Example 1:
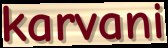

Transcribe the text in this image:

karvani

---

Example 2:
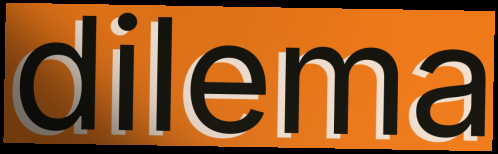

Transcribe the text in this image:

dilema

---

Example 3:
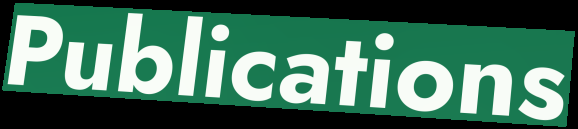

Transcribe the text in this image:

Publications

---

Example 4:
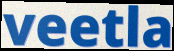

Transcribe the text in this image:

veetla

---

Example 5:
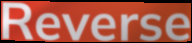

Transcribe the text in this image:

Reverse